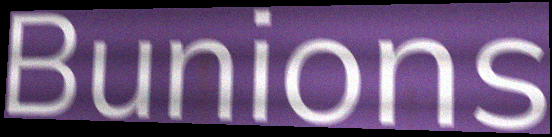
Bunions